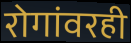
रोगांवरही